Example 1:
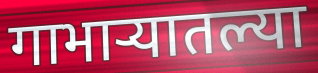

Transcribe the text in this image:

गाभाऱ्यातल्या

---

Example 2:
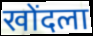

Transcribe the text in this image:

खोंदला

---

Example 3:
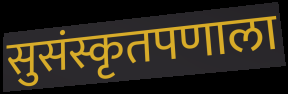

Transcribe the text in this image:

सुसंस्कृतपणाला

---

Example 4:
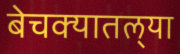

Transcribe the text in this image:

बेचक्यातल्या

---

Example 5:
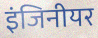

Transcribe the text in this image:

इंजिनीयर